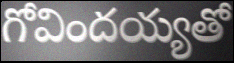
గోవిందయ్యతో